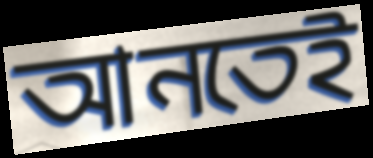
আনতেই